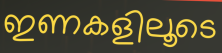
ഇണകളിലൂടെ